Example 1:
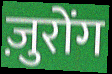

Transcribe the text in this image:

ज़ुरोंग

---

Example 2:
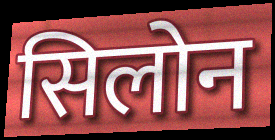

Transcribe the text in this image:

सिलोन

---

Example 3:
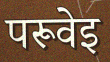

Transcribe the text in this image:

परूवेइ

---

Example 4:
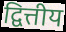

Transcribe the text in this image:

द्वित्तीय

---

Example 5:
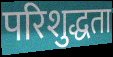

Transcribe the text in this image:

परिशुद्धता